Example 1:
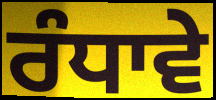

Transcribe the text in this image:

ਰੰਧਾਵੇ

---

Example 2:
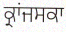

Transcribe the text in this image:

ਕ੍ਰਾਂਜਸਕਾ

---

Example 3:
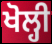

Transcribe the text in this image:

ਖੋਲ੍ਹੀ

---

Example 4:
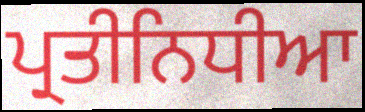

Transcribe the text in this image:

ਪ੍ਰਤੀਨਿਧੀਆ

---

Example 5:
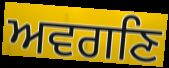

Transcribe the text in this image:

ਅਵਗਣਿ